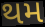
થમ